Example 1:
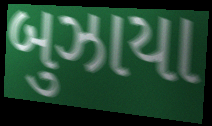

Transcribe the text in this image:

બુઝાયા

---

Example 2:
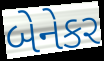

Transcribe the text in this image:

બેનેકર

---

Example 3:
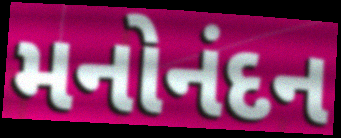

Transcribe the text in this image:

મનોનંદન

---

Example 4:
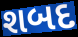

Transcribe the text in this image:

શબદ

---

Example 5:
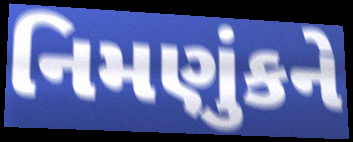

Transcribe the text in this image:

નિમણુંકને